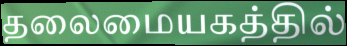
தலைமையகத்தில்